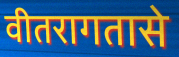
वीतरागतासे